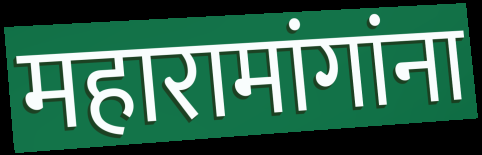
महारामांगांना